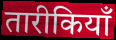
तारीकियाँ